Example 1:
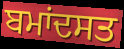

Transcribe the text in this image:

ਬਮਾਂਦਸਤ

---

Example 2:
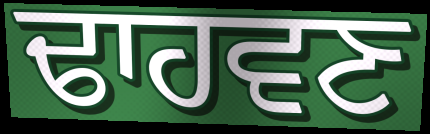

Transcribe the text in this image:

ਢਾਹਵਣ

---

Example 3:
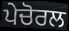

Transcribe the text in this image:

ਪੇਚੋਰਲ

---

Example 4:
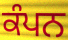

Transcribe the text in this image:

ਕੰਪਨ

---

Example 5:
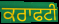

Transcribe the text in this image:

ਕਰਾਫਟੀ